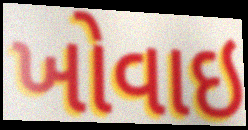
ખોવાઇ